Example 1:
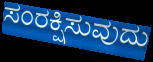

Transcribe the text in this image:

ಸಂರಕ್ಷಿಸುವುದು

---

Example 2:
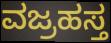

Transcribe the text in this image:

ವಜ್ರಹಸ್ತ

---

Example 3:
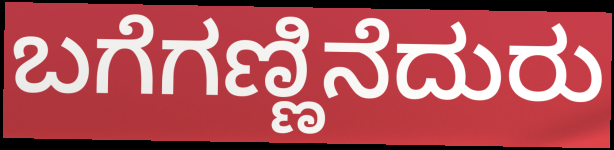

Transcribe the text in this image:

ಬಗೆಗಣ್ಣಿನೆದುರು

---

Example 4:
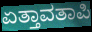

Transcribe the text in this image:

ಏತ್ತಾವತಾಪಿ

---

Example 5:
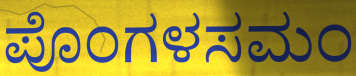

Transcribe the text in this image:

ಪೊಂಗಳಸಮಂ